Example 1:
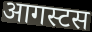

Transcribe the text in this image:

आगस्टस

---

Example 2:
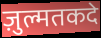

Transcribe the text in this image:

ज़ुल्मतकदे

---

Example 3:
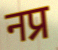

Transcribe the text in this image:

नप्र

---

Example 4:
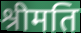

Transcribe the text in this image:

श्रीमति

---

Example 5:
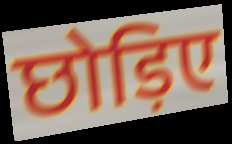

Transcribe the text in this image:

छोड़िए